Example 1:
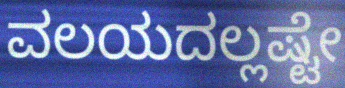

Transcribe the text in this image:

ವಲಯದಲ್ಲಷ್ಟೇ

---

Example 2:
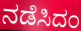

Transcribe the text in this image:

ನಡೆಸಿದಂ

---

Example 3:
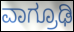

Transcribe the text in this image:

ವಾಗ್ರೂಢಿ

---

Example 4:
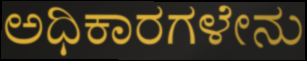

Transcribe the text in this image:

ಅಧಿಕಾರಗಳೇನು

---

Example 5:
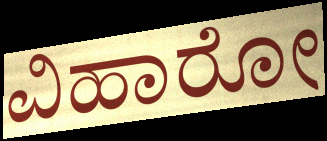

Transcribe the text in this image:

ವಿಹಾರೋ